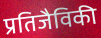
प्रतिजैविकी